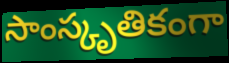
సాంస్కృతికంగా